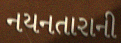
નયનતારાની